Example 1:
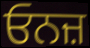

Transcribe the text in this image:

ਓਨਜ਼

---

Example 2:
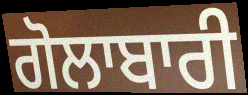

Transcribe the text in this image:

ਗੋਲਾਬਾਰੀ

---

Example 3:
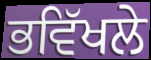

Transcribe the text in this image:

ਭਵਿੱਖਲੇ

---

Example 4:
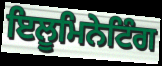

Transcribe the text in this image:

ਇਲੂਮਿਨੇਟਿੰਗ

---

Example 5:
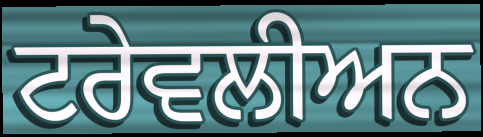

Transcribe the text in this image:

ਟਰੇਵਲੀਅਨ